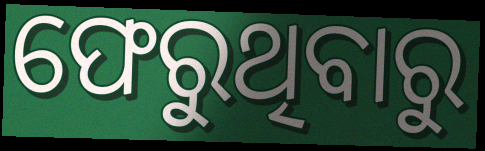
ଫେରୁଥିବାରୁ